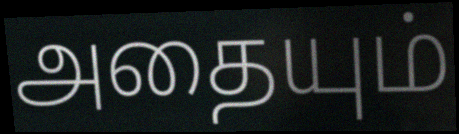
அதையும்